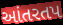
આંતરતપ